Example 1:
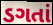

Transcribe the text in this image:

ડગતાં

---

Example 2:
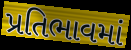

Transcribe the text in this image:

પ્રતિભાવમાં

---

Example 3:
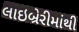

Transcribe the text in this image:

લાઇબ્રેરીમાંથી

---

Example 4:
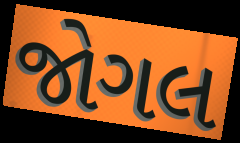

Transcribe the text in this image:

જોગલ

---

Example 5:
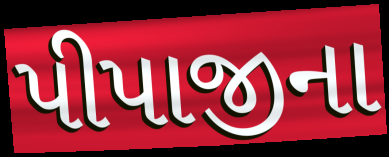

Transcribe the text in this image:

પીપાજીના